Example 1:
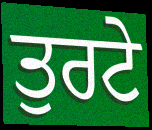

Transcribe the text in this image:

ਤੁਰਟੇ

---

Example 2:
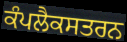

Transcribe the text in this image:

ਕੰਪਲੈਕਸਤਰਨ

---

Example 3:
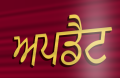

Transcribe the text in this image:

ਅਪਡੈਟ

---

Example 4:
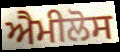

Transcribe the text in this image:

ਐਮੀਲੋਸ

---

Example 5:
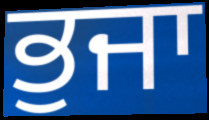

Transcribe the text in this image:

ਭੁਜਾ